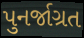
પુનર્જાગ્રત